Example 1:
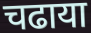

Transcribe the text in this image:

चढाया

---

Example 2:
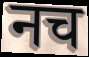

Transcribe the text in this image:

नच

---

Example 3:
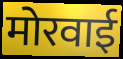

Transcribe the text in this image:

मोरवाई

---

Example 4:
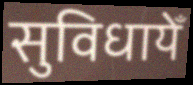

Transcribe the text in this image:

सुविधायेँ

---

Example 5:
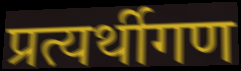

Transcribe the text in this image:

प्रत्यर्थीगण